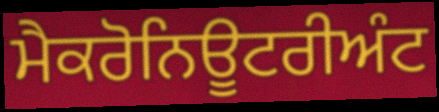
ਮੈਕਰੋਨਿਊਟਰੀਅੰਟ